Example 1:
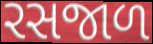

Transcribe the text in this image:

રસજાળ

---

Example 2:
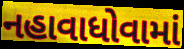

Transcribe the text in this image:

નહાવાધોવામાં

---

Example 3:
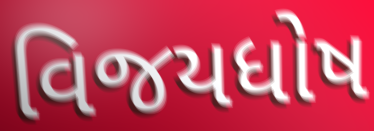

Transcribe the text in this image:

વિજયધોષ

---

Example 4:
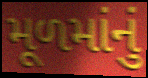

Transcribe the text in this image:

મૂળમાંનું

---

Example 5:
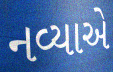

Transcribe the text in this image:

નવ્યાએ